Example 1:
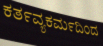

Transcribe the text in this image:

ಕರ್ತವ್ಯಕರ್ಮದಿಂದ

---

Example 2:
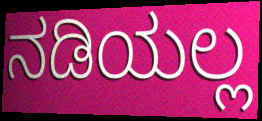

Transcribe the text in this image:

ನಡಿಯಲ್ಲ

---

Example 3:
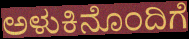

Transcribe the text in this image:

ಅಳುಕಿನೊಂದಿಗೆ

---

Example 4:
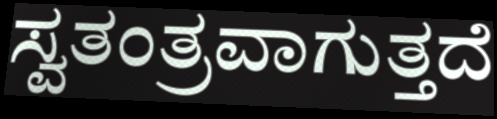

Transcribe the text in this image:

ಸ್ವತಂತ್ರವಾಗುತ್ತದೆ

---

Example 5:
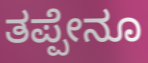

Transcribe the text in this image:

ತಪ್ಪೇನೂ